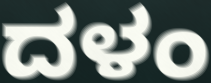
ದಳಂ